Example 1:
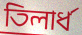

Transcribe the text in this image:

তিলার্ধ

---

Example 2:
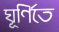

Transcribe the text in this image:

ঘূর্ণিতে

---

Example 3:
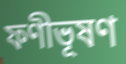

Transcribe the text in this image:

ফণীভূষণ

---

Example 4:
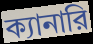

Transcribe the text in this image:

ক্যানারি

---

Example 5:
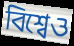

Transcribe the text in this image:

বিশ্বেও